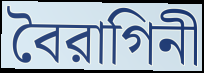
বৈরাগিনী